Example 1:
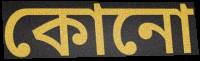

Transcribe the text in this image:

কোনো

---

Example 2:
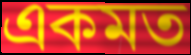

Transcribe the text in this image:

একমত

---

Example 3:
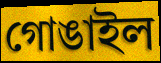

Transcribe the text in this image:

গোঙাইল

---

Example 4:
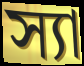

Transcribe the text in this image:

স্যা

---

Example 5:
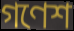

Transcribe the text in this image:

গণেশ